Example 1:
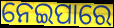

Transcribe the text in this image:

ନେଇପାରେ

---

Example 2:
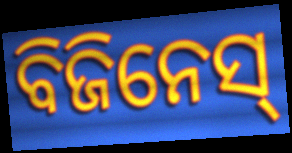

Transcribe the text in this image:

ବିଜିନେସ୍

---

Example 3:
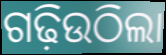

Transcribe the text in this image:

ଗଢ଼ିଉଠିଲା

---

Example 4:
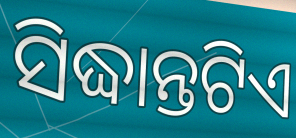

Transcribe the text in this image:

ସିଦ୍ଧାନ୍ତଟିଏ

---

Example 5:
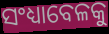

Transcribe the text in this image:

ସଂଧ୍ୟାବେଳକୁ